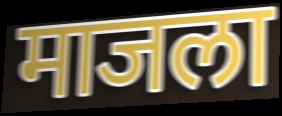
माजला